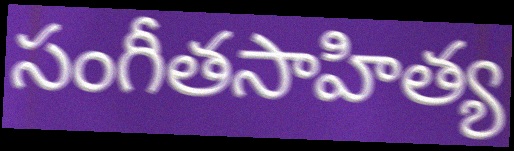
సంగీతసాహిత్య